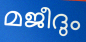
മജീദും